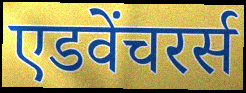
एडवेंचरर्स